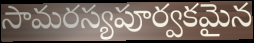
సామరస్యపూర్వకమైన